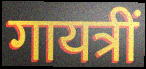
गायत्रीं